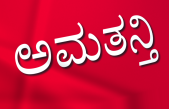
ಅಮತನ್ತಿ